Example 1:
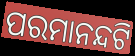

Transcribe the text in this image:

ପରମାନନ୍ଦଟି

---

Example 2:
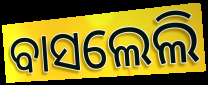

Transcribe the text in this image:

ବାସଲେଲି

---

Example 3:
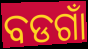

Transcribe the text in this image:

ବଡଗାଁ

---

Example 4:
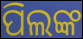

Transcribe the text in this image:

ପିଲଙ୍କ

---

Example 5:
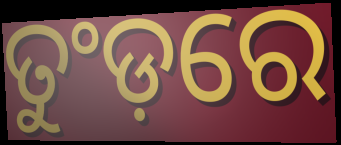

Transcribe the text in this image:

ତୁଂଡ଼ରେ